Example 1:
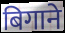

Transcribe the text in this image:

बिगाने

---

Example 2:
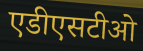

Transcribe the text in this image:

एडीएसटीओ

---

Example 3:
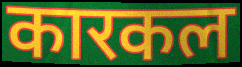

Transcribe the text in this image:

कारकल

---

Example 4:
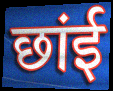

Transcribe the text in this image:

छांई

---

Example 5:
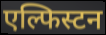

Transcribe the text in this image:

एल्फिस्टन